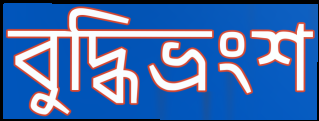
বুদ্ধিভ্রংশ